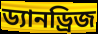
ড্যানড্রিজ